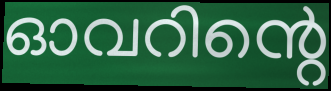
ഓവറിന്റെ